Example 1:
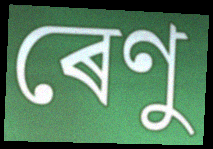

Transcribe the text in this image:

ৰেণু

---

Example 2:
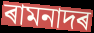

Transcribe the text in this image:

ৰামনাদৰ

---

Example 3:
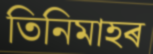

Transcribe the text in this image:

তিনিমাহৰ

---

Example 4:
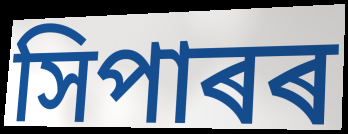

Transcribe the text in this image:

সিপাৰৰ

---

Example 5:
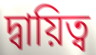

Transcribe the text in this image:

দ্বায়িত্ব